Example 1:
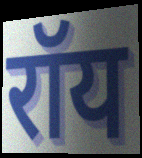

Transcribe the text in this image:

रॉय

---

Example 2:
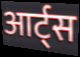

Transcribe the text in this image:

आर्ट्स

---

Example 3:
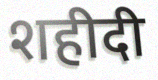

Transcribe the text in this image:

शहीदी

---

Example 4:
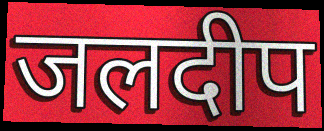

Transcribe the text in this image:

जलदीप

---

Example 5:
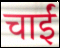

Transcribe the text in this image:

चाईं